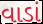
વાડાં